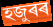
হজুৰৰ